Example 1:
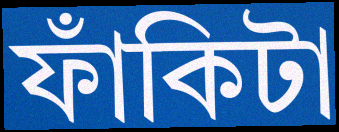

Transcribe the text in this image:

ফাঁকিটা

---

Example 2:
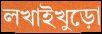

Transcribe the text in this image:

লখাইখুড়ো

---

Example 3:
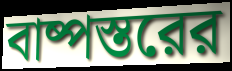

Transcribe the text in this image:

বাষ্পস্তরের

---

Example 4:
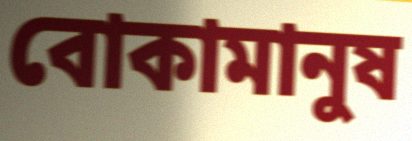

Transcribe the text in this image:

বোকামানুষ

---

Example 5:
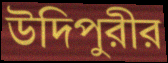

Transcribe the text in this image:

উদিপুরীর